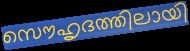
സൌഹൃദത്തിലായി